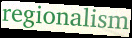
regionalism